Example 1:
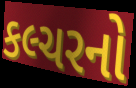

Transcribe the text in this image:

કલ્ચરનો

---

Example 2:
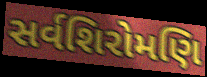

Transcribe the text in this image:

સર્વશિરોમણિ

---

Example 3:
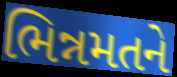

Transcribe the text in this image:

ભિન્નમતને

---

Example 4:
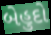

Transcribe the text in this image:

બેહુદો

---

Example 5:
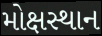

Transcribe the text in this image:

મોક્ષસ્થાન